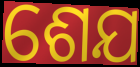
ଶେଯ